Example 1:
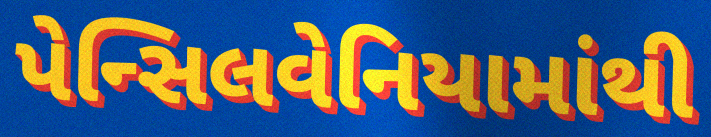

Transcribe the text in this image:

પેન્સિલવેનિયામાંથી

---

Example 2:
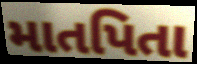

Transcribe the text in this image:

માતપિતા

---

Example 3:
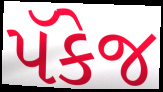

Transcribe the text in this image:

પૅકેજ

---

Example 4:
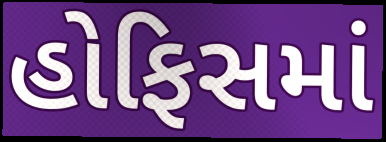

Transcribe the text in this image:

હોફિસમાં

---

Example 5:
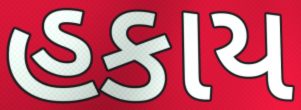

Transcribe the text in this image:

હકાય